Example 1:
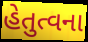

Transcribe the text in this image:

હેતુત્વના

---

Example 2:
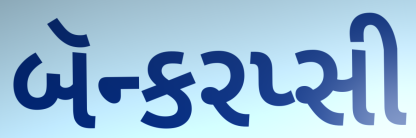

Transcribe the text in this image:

બૅન્કરપ્સી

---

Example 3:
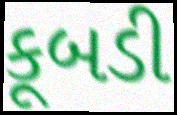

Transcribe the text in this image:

કૂબડી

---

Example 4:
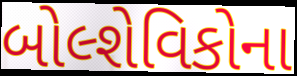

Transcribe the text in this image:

બોલ્શેવિકોના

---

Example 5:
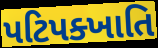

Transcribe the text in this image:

પટિપક્ખાતિ